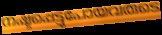
നഷ്ടപ്പെട്ടുപോയവരുടെ